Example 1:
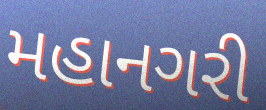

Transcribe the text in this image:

મહાનગરી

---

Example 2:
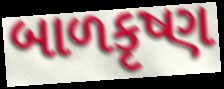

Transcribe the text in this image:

બાળકૃષ્ણ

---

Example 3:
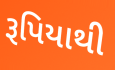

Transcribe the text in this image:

રૂપિયાથી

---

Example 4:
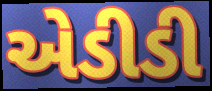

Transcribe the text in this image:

એડીડી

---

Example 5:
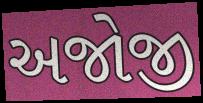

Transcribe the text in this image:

અજોજી